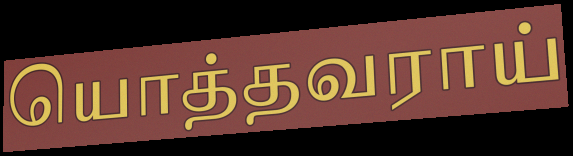
யொத்தவராய்